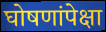
घोषणांपेक्षा